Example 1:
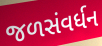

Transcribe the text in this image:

જળસંવર્ધન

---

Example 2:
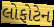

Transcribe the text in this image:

લોફોટેન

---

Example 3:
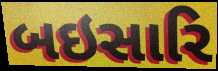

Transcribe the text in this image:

બઇસારિ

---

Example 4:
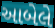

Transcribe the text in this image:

આબેલે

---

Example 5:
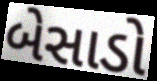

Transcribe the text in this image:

બેસાડો